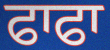
ਫਾਫਾ